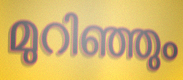
മുറിഞ്ഞും